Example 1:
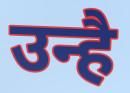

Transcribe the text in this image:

उन्है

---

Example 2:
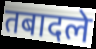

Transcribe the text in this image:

तबादले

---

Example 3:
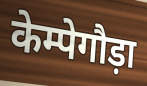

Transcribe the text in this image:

केम्पेगौड़ा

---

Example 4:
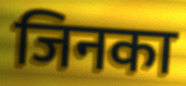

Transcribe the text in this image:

जिनका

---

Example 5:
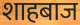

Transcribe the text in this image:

शाहबाज